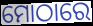
ମୋଠାରେ